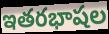
ఇతరభాషల